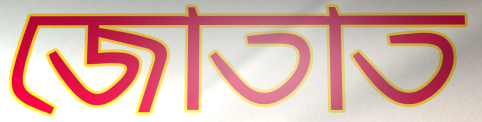
জোতাত